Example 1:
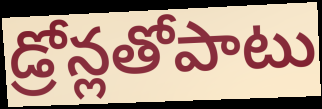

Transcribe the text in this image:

డ్రోన్లతోపాటు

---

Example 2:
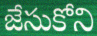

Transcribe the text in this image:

జేసుకోని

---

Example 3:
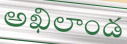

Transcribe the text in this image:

అఖిలాండ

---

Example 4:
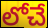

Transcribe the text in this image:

లోచే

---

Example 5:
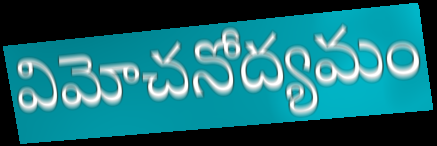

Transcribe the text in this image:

విమోచనోద్యమం